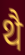
थै